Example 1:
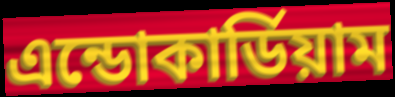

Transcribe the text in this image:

এন্ডোকার্ডিয়াম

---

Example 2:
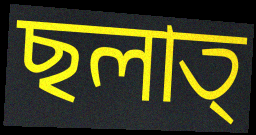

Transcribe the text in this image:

ছলাত্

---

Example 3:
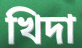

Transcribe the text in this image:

খিদা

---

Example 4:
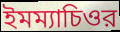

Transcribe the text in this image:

ইমম্যাচিওর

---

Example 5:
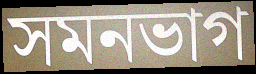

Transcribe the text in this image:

সমনভাগ